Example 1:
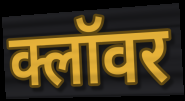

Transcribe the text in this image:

क्लॉवर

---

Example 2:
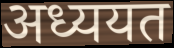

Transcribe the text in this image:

अध्ययत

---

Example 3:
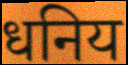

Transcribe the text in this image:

धनिय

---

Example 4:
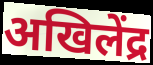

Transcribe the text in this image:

अखिलेंद्र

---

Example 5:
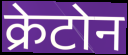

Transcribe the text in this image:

क्रेटोन